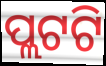
ପ୍ଲଟଟି